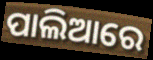
ପାଲିଆରେ